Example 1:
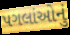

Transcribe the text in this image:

પગલાંઓનું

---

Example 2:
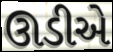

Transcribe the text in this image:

ઊડીએ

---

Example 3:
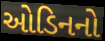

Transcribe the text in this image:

ઓડિનનો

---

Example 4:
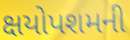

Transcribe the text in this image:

ક્ષયોપશમની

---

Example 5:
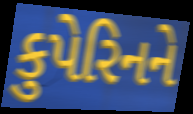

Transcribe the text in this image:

કુપેરિનને